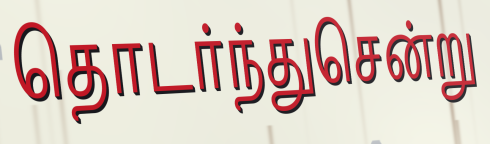
தொடர்ந்துசென்று